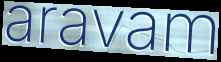
aravam